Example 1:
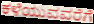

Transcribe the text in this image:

ಕಳೆಯುವವರೆಗೆ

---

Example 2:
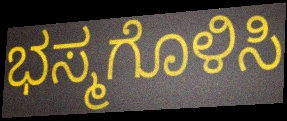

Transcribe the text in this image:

ಭಸ್ಮಗೊಳಿಸಿ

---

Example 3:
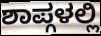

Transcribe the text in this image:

ಶಾಪ್ಗಳಲ್ಲಿ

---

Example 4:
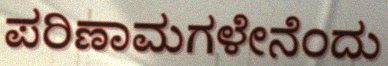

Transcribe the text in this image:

ಪರಿಣಾಮಗಳೇನೆಂದು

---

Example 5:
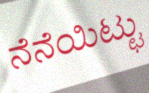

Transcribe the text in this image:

ನೆನೆಯಿಟ್ಟು